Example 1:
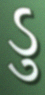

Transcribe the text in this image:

ડુ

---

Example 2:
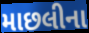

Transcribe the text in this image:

માછલીના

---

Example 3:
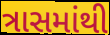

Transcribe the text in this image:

ત્રાસમાંથી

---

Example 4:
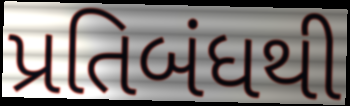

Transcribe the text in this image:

પ્રતિબંધથી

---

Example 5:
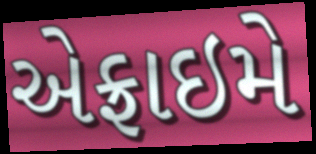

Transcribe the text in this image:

એફ્રાઇમે